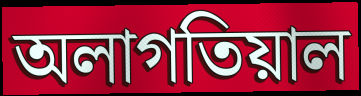
অলাগতিয়াল